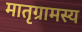
मातृग्रामस्य